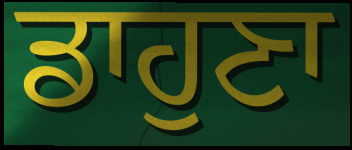
ਡਾਹੁਣਾ